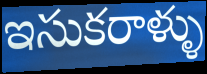
ఇసుకరాళ్ళు